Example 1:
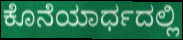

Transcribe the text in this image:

ಕೊನೆಯಾರ್ಧದಲ್ಲಿ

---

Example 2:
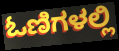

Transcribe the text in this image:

ಓಣಿಗಳಲ್ಲಿ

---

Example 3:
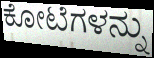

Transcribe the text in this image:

ಕೋಟೆಗಳನ್ನು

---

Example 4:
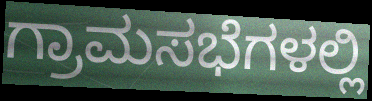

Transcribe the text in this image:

ಗ್ರಾಮಸಭೆಗಳಲ್ಲಿ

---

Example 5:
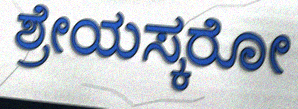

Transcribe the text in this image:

ಶ್ರೇಯಸ್ಕರೋ